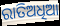
ରାତିଅଧିଆ